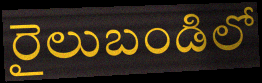
రైలుబండిలో